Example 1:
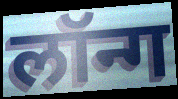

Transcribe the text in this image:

लॉन्ग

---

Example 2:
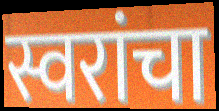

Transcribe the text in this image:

स्वरांचा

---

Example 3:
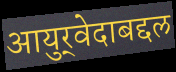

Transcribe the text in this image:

आयुर्वेदाबद्दल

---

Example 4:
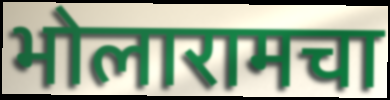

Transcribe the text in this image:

भोलारामचा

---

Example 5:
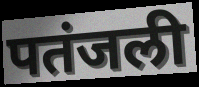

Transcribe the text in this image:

पतंजली